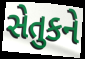
સેતુકને